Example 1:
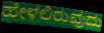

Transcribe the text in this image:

ಹೇಳಲಿರುವುದು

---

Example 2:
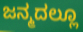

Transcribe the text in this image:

ಜನ್ಮದಲ್ಲೂ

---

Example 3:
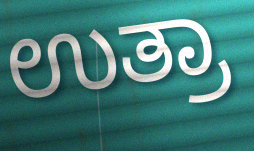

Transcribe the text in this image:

ಉತ್ರಾ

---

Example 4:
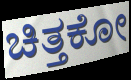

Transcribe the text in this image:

ಚಿತ್ತಕೋ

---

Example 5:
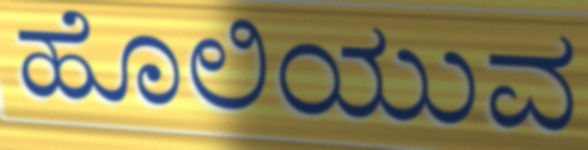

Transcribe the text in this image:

ಹೊಲಿಯುವ